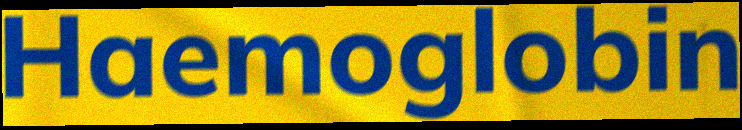
Haemoglobin